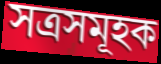
সত্ৰসমূহক